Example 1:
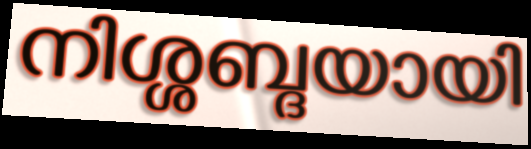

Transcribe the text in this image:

നിശ്ശബ്ദയായി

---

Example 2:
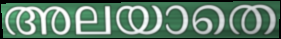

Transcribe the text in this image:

അലയാതെ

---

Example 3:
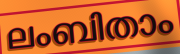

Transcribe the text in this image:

ലംബിതാം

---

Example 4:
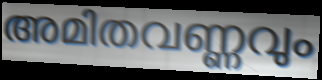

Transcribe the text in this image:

അമിതവണ്ണവും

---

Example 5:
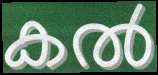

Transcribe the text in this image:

കൽ